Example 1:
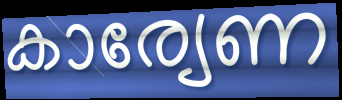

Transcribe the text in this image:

കാര്യേണ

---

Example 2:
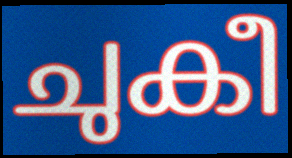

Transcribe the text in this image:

ചുകീ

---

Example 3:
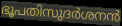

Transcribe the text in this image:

ഭൂപതിസുദർശനൻ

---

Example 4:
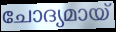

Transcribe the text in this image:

ചോദ്യമായ്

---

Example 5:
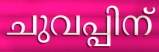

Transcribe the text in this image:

ചുവപ്പിന്